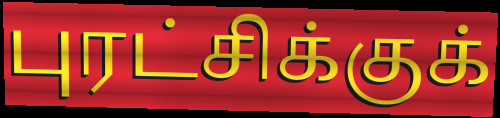
புரட்சிக்குக்